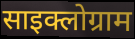
साइक्लोग्राम